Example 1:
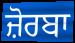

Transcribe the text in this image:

ਜ਼ੋਰਬਾ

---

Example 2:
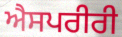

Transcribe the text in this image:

ਐਸਪਰੀਰੀ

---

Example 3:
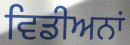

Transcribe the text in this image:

ਵਿਡੀਅਨਾਂ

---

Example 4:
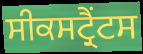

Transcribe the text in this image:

ਸੀਕਸਟ੍ਰੈਂਟਸ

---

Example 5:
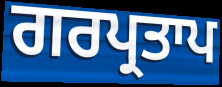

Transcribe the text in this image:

ਗਰਪ੍ਰਤਾਪ